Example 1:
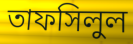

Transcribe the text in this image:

তাফসিলুল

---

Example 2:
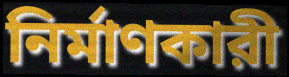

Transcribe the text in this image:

নির্মাণকারী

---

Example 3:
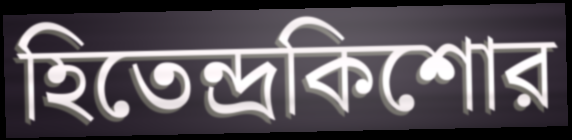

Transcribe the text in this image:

হিতেন্দ্রকিশোর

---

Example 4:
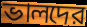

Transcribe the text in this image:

ভালদের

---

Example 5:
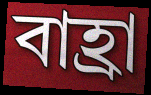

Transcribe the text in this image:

বাহ্রা